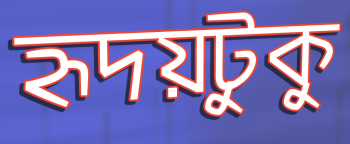
হৃদয়টুকু